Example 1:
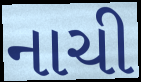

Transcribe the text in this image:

નાચી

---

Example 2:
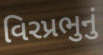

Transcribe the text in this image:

વિરપ્રભુનું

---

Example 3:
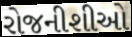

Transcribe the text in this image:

રોજનીશીઓ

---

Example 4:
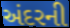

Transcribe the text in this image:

અંદરની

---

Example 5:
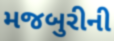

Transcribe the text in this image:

મજબુરીની